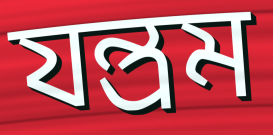
যন্ত্রম